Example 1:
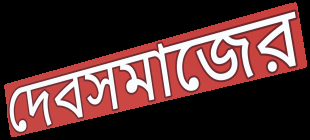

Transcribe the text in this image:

দেবসমাজের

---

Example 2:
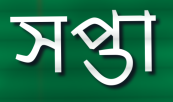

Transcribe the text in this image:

সপ্তা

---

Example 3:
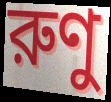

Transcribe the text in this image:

রুণু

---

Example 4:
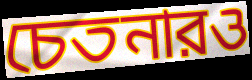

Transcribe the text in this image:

চেতনারও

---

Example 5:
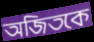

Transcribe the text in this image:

অজিতকে